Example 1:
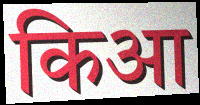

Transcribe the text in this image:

किआ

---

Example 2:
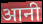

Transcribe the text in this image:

आनी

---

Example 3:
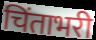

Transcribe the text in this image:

चिंताभरी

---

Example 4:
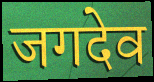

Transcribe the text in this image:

जगदेव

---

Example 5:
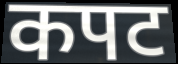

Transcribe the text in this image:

कपट